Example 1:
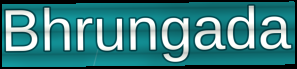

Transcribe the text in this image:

Bhrungada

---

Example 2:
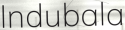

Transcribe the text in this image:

Indubala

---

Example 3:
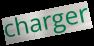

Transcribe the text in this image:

charger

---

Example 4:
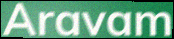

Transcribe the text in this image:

Aravam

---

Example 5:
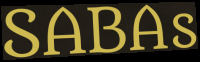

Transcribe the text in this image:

SABAs